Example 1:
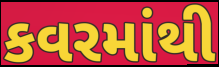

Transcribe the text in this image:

કવરમાંથી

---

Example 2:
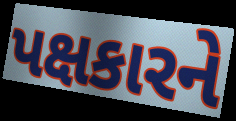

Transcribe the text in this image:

પક્ષકારને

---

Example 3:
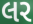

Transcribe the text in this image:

લર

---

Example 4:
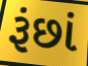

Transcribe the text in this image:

રૂંછાં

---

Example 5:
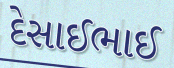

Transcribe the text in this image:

દેસાઈભાઈ